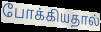
போக்கியதால்